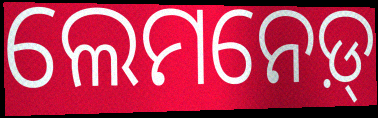
ଲେମନେଡ଼୍